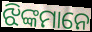
ଝିଙ୍କମାନେ